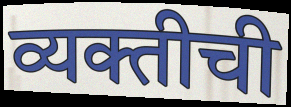
व्यक्तीची